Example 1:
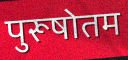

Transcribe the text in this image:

पुरूषोतम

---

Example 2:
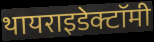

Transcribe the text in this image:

थायराइडेक्टॉमी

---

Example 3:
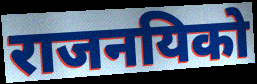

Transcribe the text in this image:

राजनयिको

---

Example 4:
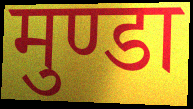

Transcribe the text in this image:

मुण्डा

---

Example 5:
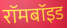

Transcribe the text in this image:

रॉमबॉइड